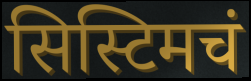
सिस्टिमचं